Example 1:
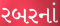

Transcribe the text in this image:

રબરનાં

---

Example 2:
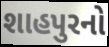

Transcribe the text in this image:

શાહપુરનો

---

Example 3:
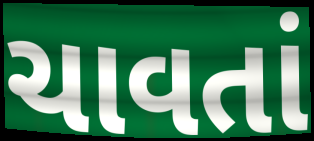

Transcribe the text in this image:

ચાવતાં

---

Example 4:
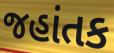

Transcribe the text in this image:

જહાંતક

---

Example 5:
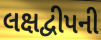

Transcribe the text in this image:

લક્ષદ્વીપની